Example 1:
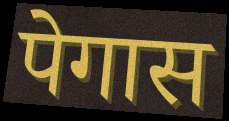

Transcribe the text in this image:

पेगास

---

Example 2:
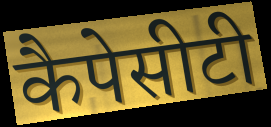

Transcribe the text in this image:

कैपेसीटी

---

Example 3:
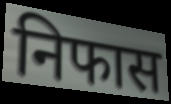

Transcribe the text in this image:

निफास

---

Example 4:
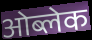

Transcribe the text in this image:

ओब्लेक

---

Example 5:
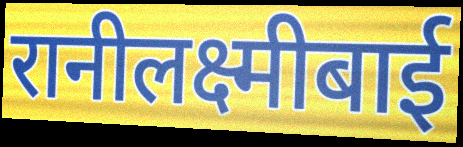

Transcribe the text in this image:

रानीलक्ष्मीबाई